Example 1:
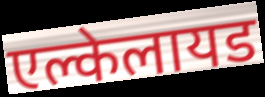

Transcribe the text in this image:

एल्केलायड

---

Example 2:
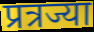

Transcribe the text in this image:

प्रत्रज्या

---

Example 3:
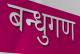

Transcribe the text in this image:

बन्धुगण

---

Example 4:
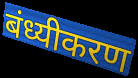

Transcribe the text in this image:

बंध्यीकरण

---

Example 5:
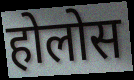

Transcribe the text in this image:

होलोस